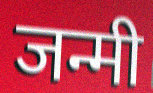
जन्मी